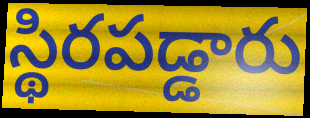
స్థిరపడ్డారు